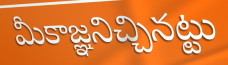
మీకాజ్ఞనిచ్చినట్టు